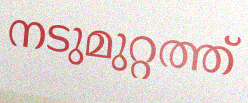
നടുമുറ്റത്ത്